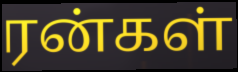
ரன்கள்